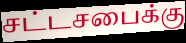
சட்டசபைக்கு